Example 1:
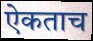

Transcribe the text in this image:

ऐकताच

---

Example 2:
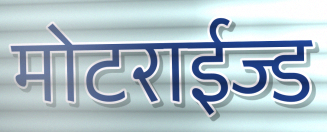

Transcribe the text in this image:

मोटराईज्ड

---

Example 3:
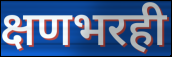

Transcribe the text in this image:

क्षणभरही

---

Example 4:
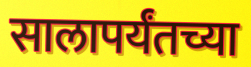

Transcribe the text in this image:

सालापर्यंतच्या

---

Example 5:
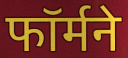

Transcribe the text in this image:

फॉर्मने